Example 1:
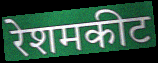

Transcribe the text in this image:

रेशमकीट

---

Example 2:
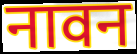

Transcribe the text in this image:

नावन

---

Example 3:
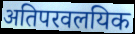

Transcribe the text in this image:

अतिपरवलयिक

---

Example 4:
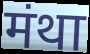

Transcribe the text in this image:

मंथा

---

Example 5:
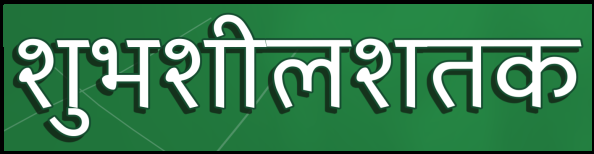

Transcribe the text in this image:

शुभशीलशतक